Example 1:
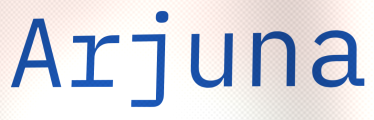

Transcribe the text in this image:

Arjuna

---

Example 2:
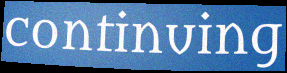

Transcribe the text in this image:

continuing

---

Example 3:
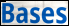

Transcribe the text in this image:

Bases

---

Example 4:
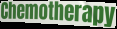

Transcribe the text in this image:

Chemotherapy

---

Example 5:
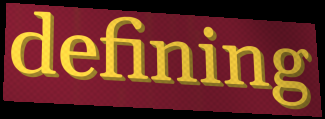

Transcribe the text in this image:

defining